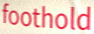
foothold